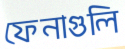
ফেনাগুলি